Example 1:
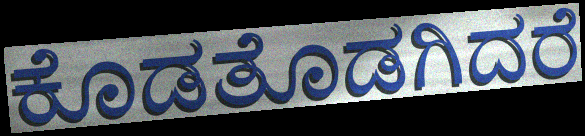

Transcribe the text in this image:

ಕೊಡತೊಡಗಿದರೆ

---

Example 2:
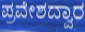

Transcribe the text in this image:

ಪ್ರವೇಶದ್ವಾರ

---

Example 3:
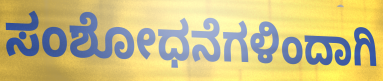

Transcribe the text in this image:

ಸಂಶೋಧನೆಗಳಿಂದಾಗಿ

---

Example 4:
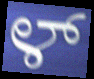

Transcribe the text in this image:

ಳ್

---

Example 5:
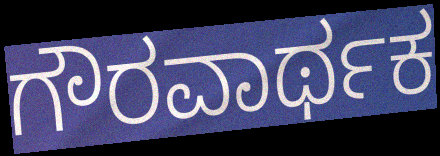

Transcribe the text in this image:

ಗೌರವಾರ್ಥಕ